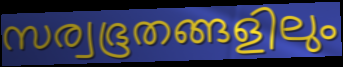
സര്വഭൂതങ്ങളിലും